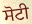
ਸੋਟੀ